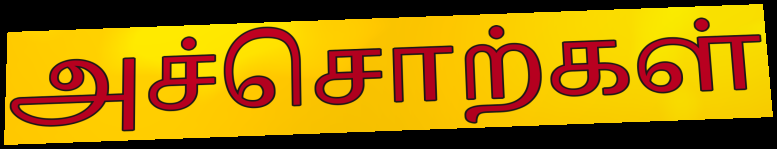
அச்சொற்கள்